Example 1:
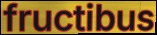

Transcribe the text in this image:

fructibus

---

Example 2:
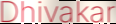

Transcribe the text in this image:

Dhivakar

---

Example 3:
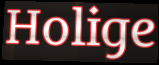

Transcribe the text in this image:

Holige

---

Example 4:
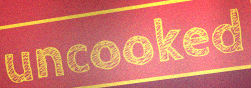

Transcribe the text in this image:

uncooked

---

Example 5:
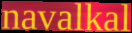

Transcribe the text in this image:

navalkal